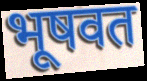
भूषवत